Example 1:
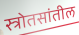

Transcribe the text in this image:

स्त्रोतसांतील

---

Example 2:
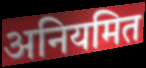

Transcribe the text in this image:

अनियमित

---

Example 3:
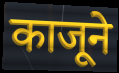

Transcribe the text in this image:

काजूने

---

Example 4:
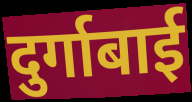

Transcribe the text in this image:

दुर्गाबाई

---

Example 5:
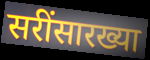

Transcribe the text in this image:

सरींसारख्या